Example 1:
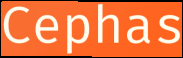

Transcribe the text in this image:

Cephas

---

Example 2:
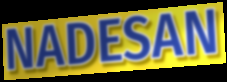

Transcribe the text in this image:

NADESAN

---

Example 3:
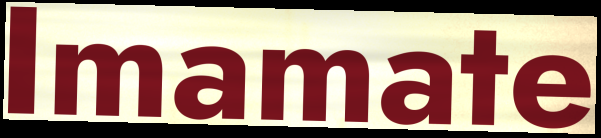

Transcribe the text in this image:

Imamate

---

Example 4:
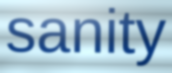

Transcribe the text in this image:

sanity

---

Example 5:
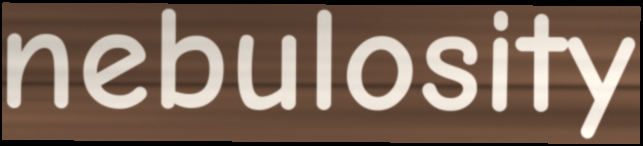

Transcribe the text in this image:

nebulosity